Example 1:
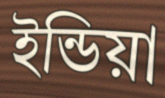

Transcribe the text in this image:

ইন্ডিয়া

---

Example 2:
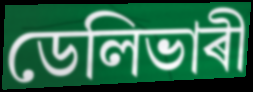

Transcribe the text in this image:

ডেলিভাৰী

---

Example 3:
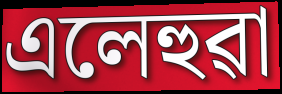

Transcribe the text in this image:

এলেহুৱা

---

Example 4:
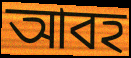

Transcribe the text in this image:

আবহ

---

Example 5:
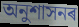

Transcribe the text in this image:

অনুশাসনৰ